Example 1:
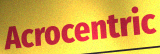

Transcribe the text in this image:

Acrocentric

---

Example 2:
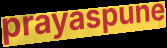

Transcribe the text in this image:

prayaspune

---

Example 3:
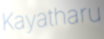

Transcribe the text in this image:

Kayatharu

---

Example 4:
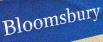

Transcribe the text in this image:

Bloomsbury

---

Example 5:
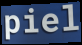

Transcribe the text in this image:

piel